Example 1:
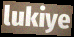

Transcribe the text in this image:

lukiye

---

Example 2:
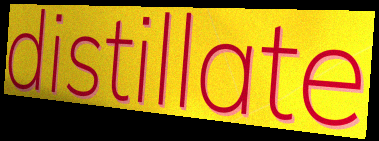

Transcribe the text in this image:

distillate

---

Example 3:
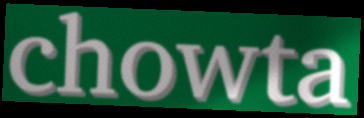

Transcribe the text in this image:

chowta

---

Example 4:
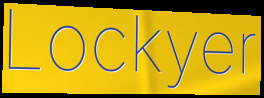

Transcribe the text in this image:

Lockyer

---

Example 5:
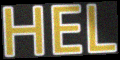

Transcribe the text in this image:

HEL